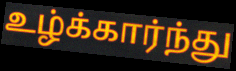
உழ்க்கார்ந்து